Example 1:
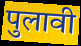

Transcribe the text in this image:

पुलावी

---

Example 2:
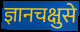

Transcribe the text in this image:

ज्ञानचक्षुसे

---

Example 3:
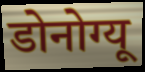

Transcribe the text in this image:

डोनोग्यू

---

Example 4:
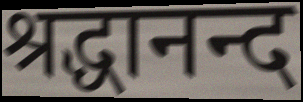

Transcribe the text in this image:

श्रद्धानन्द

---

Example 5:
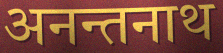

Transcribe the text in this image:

अनन्तनाथ